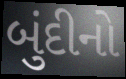
બુંદીનો